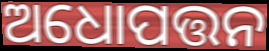
ଅଧୋପତ୍ତନ